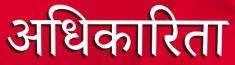
अधिकारिता